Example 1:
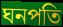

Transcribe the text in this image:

ঘনপতি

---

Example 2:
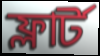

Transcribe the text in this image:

ফ্লার্ট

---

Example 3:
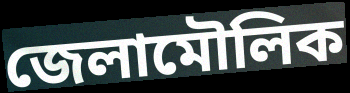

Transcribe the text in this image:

জেলামৌলিক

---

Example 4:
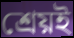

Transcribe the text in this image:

শ্রেয়ই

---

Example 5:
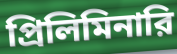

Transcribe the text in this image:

প্রিলিমিনারি